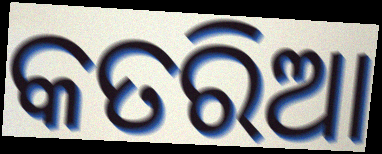
କତରିଆ